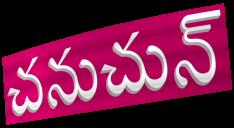
చనుచున్